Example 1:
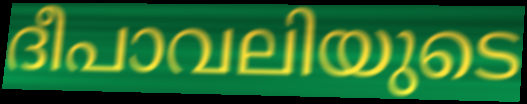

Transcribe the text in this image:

ദീപാവലിയുടെ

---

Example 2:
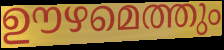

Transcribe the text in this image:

ഊഴമെത്തും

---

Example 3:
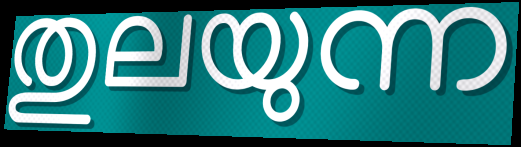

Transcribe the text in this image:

തുലയുന്ന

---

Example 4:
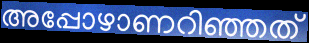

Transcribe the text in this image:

അപ്പോഴാണറിഞ്ഞത്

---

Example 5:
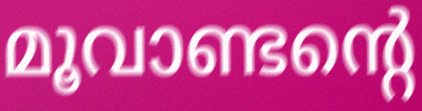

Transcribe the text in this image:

മൂവാണ്ടന്റെ